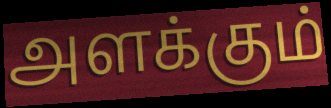
அளக்கும்